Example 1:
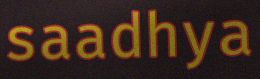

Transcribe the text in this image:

saadhya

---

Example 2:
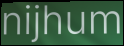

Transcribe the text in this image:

nijhum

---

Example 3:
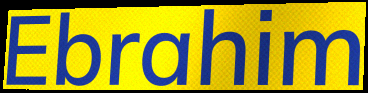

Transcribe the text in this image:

Ebrahim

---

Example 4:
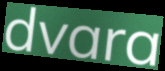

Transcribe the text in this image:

dvara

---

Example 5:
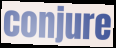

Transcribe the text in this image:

conjure